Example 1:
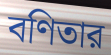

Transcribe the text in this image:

বণিতার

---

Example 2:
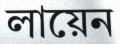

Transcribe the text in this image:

লায়েন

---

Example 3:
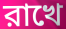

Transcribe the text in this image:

রাখে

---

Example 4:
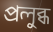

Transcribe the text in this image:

প্রলুব্ধ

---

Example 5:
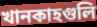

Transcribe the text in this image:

খানকাহগুলি